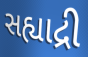
સહ્યાદ્રી